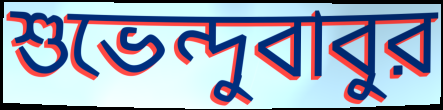
শুভেন্দুবাবুর